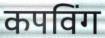
कपविंग